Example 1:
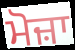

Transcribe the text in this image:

ਮੋਜ਼ਾ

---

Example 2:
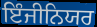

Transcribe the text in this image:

ਇੰਜੀਨਿਯਰ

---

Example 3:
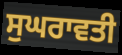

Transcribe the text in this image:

ਸੁਘਰਾਵਤੀ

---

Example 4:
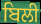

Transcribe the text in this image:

ਬਿਲੀ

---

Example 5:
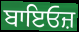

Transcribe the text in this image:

ਬਾਇਓਜ਼